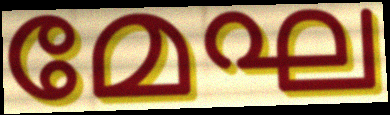
മേഘ